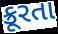
ક્રૂરતા